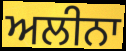
ਅਲੀਨਾ